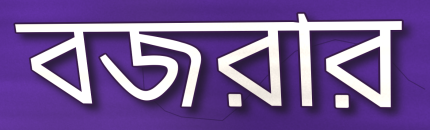
বজরার